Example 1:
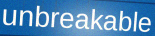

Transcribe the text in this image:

unbreakable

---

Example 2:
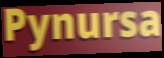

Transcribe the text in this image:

Pynursa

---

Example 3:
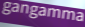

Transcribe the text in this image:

gangamma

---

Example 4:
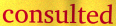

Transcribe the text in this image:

consulted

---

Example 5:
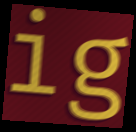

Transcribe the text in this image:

ig